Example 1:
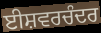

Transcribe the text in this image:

ਈਸ਼ਵਰਚੰਦਰ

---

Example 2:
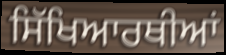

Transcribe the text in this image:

ਸਿੱਖਿਆਰਥੀਆਂ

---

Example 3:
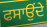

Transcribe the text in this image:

ਫਸਾਉਂਦੇ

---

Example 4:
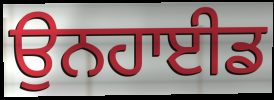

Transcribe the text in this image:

ਉਨਹਾਈਡ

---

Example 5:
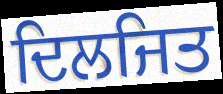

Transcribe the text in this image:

ਦਿਲਜਿਤ